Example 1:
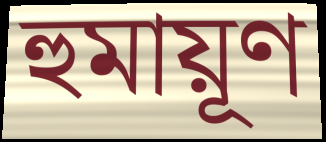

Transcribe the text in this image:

হুমায়ূণ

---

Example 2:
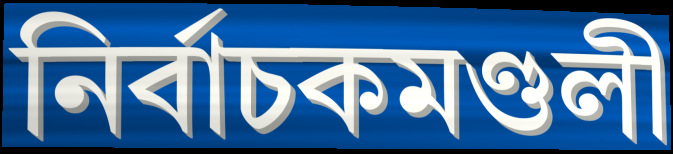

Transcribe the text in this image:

নির্বাচকমণ্ডলী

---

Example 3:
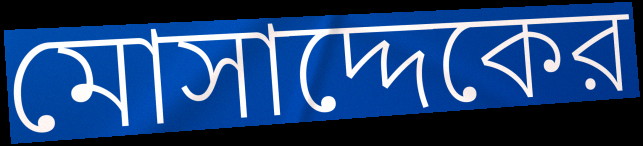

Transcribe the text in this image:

মোসাদ্দেকের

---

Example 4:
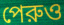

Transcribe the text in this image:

পেরুও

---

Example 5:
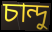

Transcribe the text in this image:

চান্দু